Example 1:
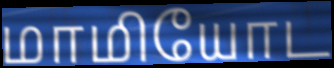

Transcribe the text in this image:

மாமியோட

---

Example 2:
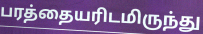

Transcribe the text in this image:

பரத்தையரிடமிருந்து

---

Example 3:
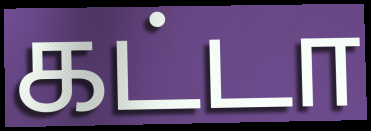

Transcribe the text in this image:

கட்டா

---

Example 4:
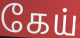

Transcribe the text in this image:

கேய்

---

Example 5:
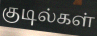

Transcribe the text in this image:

குடில்கள்